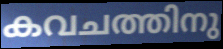
കവചത്തിനു